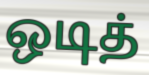
ஒடித்